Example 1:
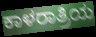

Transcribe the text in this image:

ಕಾಳರಾತ್ರಿಯ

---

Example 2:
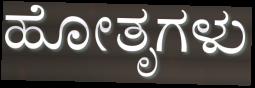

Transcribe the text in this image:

ಹೋತೃಗಳು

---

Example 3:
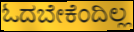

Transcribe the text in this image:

ಓದಬೇಕೆಂದಿಲ್ಲ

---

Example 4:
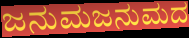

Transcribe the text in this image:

ಜನುಮಜನುಮದ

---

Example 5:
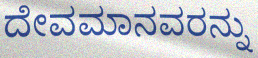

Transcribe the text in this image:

ದೇವಮಾನವರನ್ನು